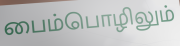
பைம்பொழிலும்